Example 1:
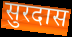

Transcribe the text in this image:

सुरदास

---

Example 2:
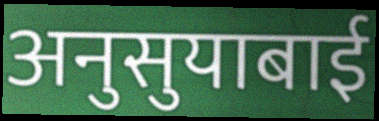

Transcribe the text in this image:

अनुसुयाबाई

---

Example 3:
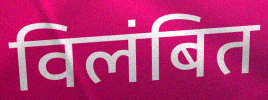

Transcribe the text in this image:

विलंबित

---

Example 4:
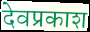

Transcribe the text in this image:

देवप्रकाश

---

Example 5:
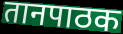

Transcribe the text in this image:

तानपाठक